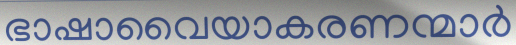
ഭാഷാവൈയാകരണന്മാർ